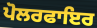
ਪੋਲਰਫਾਇਰ